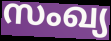
സംഖ്യ